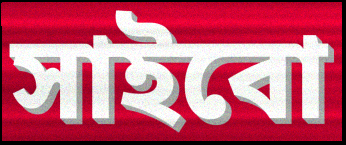
সাইবো